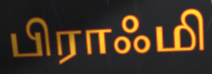
பிராஃமி